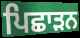
ਪਿਛਾੜਨ